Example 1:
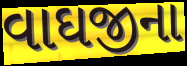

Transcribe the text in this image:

વાઘજીના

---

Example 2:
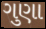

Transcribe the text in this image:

ગુણા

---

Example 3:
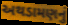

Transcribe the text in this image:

અથડામણનું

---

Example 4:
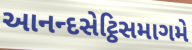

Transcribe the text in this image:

આનન્દસેટ્ઠિસમાગમે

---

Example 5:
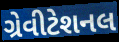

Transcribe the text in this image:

ગ્રેવીટેશનલ